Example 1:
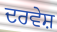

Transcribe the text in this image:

ਦਰਵੇਸ਼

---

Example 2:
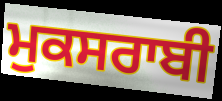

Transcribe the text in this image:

ਮੁਕਸਰਾਬੀ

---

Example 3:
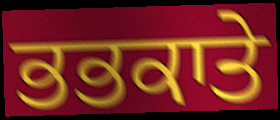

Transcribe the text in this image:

ਭਭਕਾਤੇ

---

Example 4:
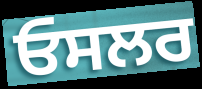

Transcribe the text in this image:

ਓਸਲਰ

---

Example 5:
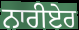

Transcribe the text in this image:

ਨਾਰੀਏਰ